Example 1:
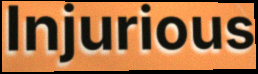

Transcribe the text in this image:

Injurious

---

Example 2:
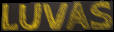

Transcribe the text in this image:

LUVAS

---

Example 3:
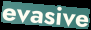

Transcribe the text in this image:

evasive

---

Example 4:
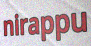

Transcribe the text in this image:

nirappu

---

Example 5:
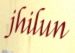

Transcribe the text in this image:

jhilun